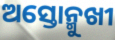
ଅସ୍ତୋନ୍ମୁଖୀ